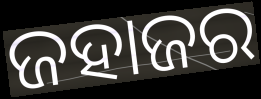
ଜହାଜର